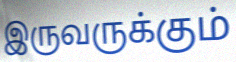
இருவருக்கும்